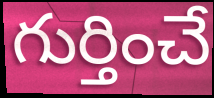
గుర్తించే